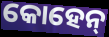
କୋହେନ୍